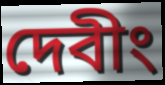
দেবীং